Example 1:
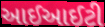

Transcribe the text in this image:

આઈઆઈટી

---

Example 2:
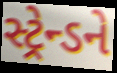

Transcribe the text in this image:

સ્ટ્રેન્ડને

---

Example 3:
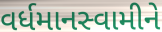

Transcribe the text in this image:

વર્ધમાનસ્વામીને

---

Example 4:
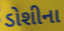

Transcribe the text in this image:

ડોશીના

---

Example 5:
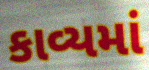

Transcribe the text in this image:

કાવ્યમાં